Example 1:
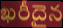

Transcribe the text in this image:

ఖరీదైన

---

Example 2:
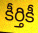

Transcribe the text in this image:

కీర్తికీ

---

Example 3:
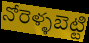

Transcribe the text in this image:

నోరెళ్ళబెట్టి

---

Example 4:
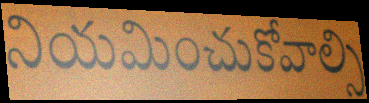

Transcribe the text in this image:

నియమించుకోవాల్సి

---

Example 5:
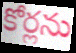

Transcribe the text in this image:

కోర్లను